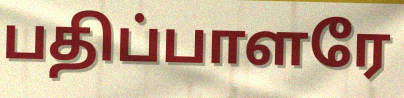
பதிப்பாளரே